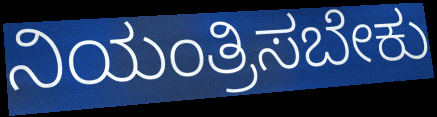
ನಿಯಂತ್ರಿಸಬೇಕು